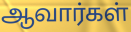
ஆவார்கள்